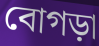
বোগড়া